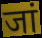
जां